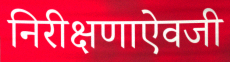
निरीक्षणाऐवजी